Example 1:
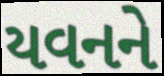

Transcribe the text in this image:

યવનને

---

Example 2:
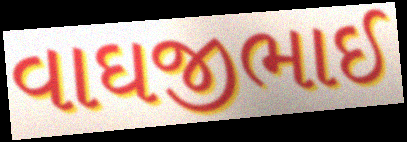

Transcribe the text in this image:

વાઘજીભાઈ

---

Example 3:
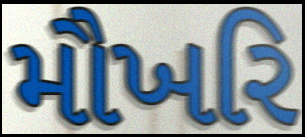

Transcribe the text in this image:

મૌખરિ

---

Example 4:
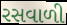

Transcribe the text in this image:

રસવાળી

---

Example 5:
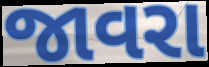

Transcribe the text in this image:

જાવરા